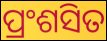
ପ୍ରଂଶସିତ